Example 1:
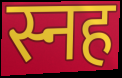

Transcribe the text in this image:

स्नह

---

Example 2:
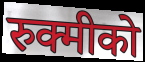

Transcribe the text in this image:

रुक्मीको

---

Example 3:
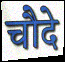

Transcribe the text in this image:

चौदे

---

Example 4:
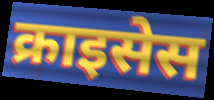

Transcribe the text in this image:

क्राइसेस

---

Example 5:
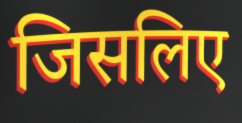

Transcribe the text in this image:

जिसलिए